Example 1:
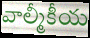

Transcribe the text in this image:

వాల్మీకీయ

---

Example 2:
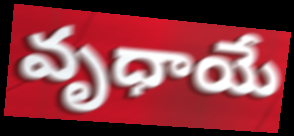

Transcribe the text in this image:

వృధాయే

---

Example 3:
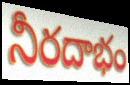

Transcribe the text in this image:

నీరదాభం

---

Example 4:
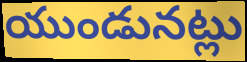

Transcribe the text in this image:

యుండునట్లు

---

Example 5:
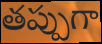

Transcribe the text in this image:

తప్పుగా